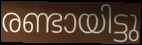
രണ്ടായിട്ടു